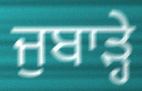
ਜੁਬਾੜ੍ਹੇ